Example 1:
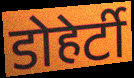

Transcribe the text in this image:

डोहेर्टी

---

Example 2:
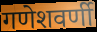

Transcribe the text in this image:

गणेशवर्णी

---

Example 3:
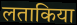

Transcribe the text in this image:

लताकिया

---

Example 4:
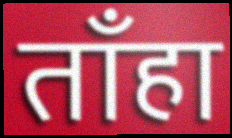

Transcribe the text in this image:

ताँहा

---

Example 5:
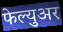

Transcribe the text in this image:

फेल्युअर